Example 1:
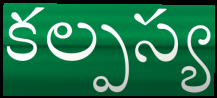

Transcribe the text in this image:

కల్పస్య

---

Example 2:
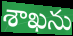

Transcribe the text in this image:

శాఖను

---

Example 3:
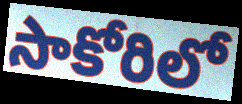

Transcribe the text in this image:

సాకోరిలో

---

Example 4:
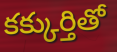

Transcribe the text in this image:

కక్కుర్తితో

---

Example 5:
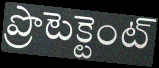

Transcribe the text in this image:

ప్రొటెక్టెంట్